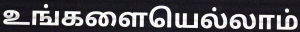
உங்களையெல்லாம்